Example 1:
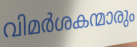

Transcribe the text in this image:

വിമർശകന്മാരും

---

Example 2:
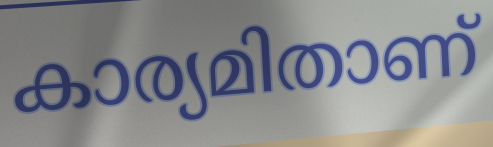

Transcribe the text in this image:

കാര്യമിതാണ്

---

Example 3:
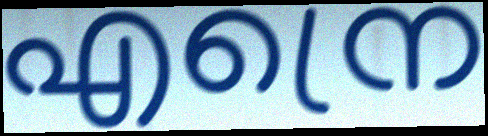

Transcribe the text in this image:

എന്രെ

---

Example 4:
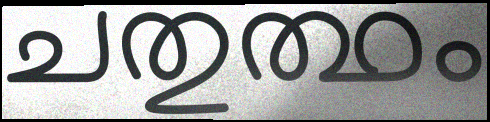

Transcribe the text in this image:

ചതുത്ഥം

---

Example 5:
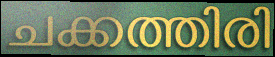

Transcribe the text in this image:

ചക്കത്തിരി